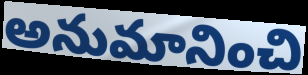
అనుమానించి